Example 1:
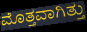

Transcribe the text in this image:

ಮೊತ್ತವಾಗಿತ್ತು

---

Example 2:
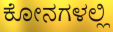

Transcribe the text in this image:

ಕೋನಗಳಲ್ಲಿ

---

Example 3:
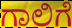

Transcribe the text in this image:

ಗಾಲಿಗೆ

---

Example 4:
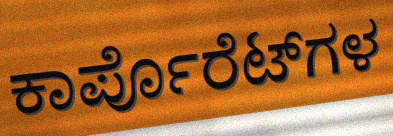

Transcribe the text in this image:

ಕಾರ್ಪೊರೆಟ್‌ಗಳ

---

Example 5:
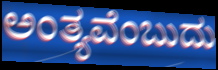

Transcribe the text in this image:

ಅಂತ್ಯವೆಂಬುದು